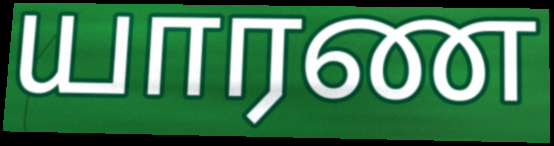
யாரண